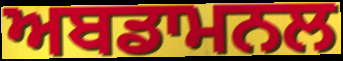
ਅਬਡਾਮਨਲ